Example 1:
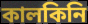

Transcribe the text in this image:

কালকিনি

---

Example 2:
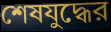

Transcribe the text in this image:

শেষযুদ্ধের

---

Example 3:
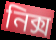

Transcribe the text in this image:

নিক্স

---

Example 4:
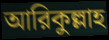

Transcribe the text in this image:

আরিকুল্লাহ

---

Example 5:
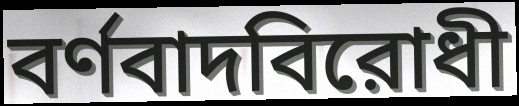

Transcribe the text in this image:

বর্ণবাদবিরোধী